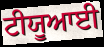
ਟੀਯੂਆਈ